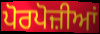
ਪੋਰਪੋਜ਼ੀਆਂ